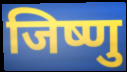
जिष्णु